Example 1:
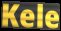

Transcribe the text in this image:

Kele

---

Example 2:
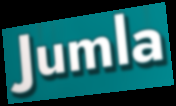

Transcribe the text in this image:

Jumla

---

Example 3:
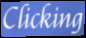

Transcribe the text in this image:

Clicking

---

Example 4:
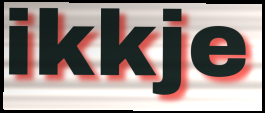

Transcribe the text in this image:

ikkje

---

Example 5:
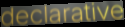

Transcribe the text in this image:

declarative